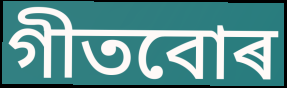
গীতবোৰ